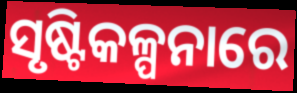
ସୃଷ୍ଟିକଳ୍ପନାରେ